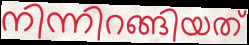
നിന്നിറങ്ങിയത്